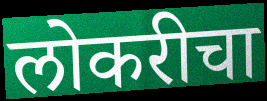
लोकरीचा